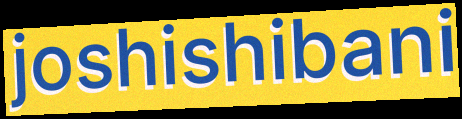
joshishibani